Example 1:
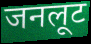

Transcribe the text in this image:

जनलूट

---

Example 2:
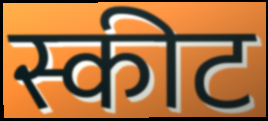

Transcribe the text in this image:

स्‍कीट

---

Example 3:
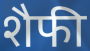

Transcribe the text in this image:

शैफी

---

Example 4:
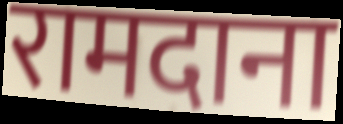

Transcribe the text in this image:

रामदाना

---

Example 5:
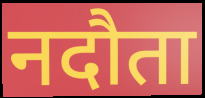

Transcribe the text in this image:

नदौता